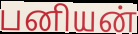
பனியன்